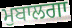
ਮੁਬਾਲਗਾ